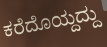
ಕರೆದೊಯ್ದದ್ದು